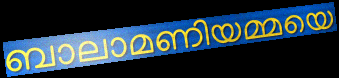
ബാലാമണിയമ്മയെ